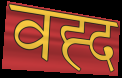
वह्द